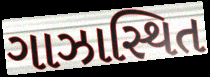
ગાઝાસ્થિત